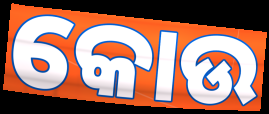
କୋଉ